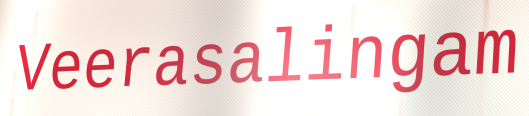
Veerasalingam